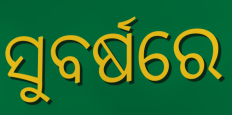
ସୁବର୍ଷରେ